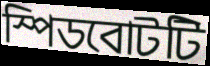
স্পিডবোটটি